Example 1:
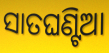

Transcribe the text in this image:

ସାତଘଣ୍ଟିଆ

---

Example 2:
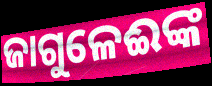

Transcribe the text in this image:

ଜାଗୁଳେଈଙ୍କ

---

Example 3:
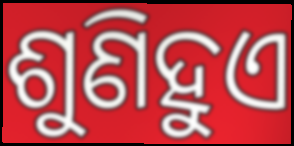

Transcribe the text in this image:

ଶୁଣିହୁଏ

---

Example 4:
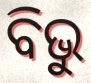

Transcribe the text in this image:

ବିଭୁ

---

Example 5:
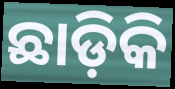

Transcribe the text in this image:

ଛାଡ଼ିକି